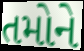
તમોને